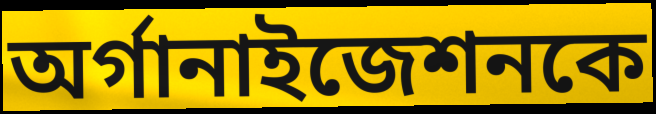
অর্গানাইজেশনকে